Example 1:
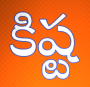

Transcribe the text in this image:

కిష్ట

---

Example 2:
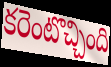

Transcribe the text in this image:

కరెంటొచ్చింది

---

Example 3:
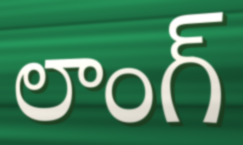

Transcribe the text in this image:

లాంగ్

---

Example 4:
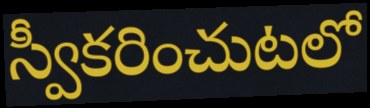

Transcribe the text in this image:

స్వీకరించుటలో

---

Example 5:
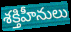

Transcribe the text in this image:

శక్తిహీనులు